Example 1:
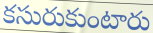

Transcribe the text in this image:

కసురుకుంటారు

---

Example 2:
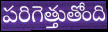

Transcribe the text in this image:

పరిగెత్తుతోంది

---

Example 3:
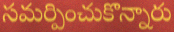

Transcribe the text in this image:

సమర్పించుకొన్నారు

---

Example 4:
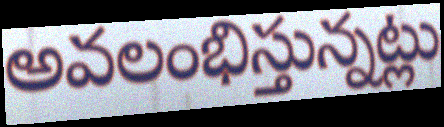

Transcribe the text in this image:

అవలంభిస్తున్నట్లు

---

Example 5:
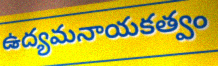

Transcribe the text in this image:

ఉద్యమనాయకత్వం